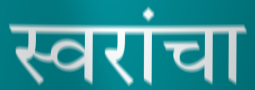
स्वरांचा